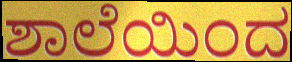
ಶಾಲೆಯಿಂದ